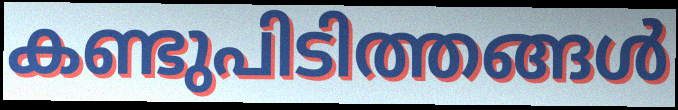
കണ്ടുപിടിത്തങ്ങൾ